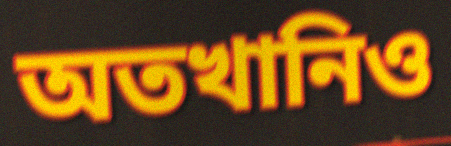
অতখানিও